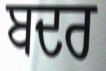
ਬਦਰ